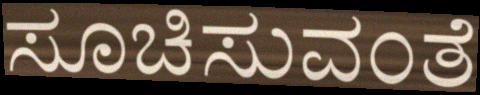
ಸೂಚಿಸುವಂತೆ